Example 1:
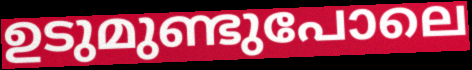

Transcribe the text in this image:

ഉടുമുണ്ടുപോലെ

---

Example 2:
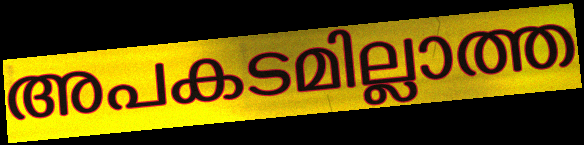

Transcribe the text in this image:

അപകടമില്ലാത്ത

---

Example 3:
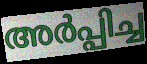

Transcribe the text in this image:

അർപ്പിച്ച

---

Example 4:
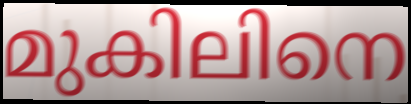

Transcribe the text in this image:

മുകിലിനെ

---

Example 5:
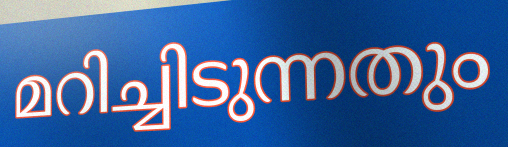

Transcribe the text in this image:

മറിച്ചിടുന്നതും